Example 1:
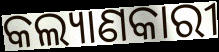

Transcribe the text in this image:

କଲ୍ୟାଣକାରୀ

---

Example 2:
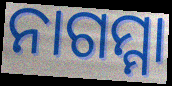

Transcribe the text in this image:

ନାଗମ୍ମା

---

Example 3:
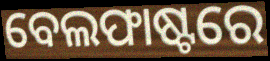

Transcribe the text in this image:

ବେଲଫାଷ୍ଟରେ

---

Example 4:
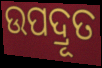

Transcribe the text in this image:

ଉପଦ୍ରୂତ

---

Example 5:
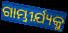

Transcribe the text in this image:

ଗାମ୍ଭୀର୍ଯ୍ୟକୁ